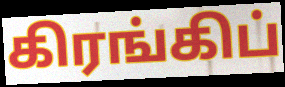
கிரங்கிப்